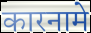
कारनामे